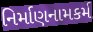
નિર્માણનામકર્મ